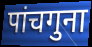
पांचगुना